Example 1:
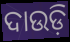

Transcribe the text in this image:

ଦାଉଡ଼ି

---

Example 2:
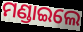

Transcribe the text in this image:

ମଣ୍ଡାଇଲେ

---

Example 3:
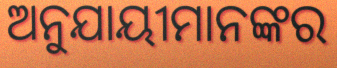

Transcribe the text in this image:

ଅନୁଯାୟୀମାନଙ୍କର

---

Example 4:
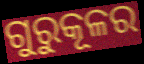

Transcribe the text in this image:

ଗୁରୁକୂଳର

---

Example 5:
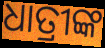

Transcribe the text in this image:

ଧାତ୍ରୀଙ୍କ